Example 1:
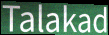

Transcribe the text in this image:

Talakad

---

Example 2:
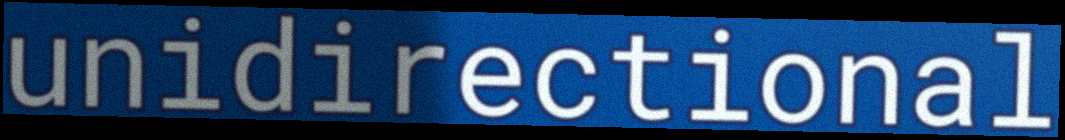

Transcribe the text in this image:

unidirectional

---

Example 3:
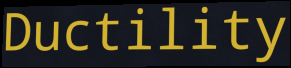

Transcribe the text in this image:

Ductility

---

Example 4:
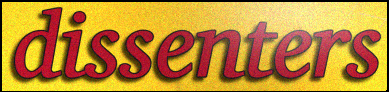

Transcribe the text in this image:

dissenters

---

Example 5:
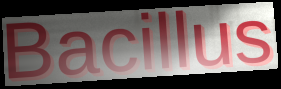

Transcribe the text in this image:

Bacillus